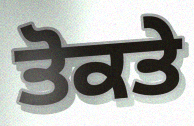
ਤੋਕਤੇ